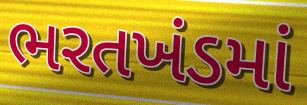
ભરતખંડમાં